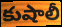
కుషాలీ